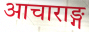
आचाराङ्ग